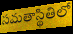
సమతాస్థితిలో